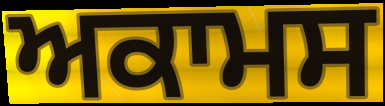
ਅਕਾਮਸ